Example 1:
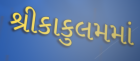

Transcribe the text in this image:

શ્રીકાકુલમમાં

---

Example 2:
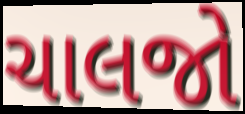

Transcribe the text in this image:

ચાલજો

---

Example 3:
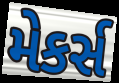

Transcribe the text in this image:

મેકર્સ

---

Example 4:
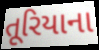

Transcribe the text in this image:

તૂરિયાના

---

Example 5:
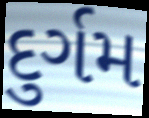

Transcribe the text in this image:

દુર્ગમ